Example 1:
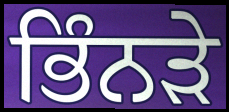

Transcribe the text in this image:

ਭਿੰਨੜੇ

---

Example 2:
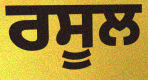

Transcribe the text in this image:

ਰਸੂਲ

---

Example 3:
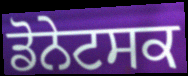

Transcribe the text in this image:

ਡੋਨੇਟਸਕ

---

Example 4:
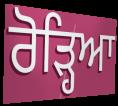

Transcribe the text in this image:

ਰੋੜ੍ਹਿਆ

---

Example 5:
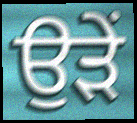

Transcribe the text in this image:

ਉੜੇਂ